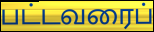
பட்டவரைப்